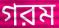
গরম